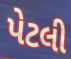
પેટલી